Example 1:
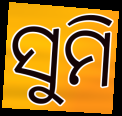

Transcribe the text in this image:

ସୁମି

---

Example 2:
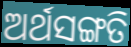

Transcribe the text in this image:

ଅର୍ଥସଙ୍ଗତି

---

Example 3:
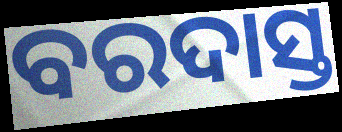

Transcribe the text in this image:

ବରଦାସ୍ତ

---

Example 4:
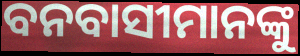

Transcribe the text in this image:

ବନବାସୀମାନଙ୍କୁ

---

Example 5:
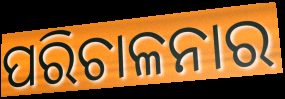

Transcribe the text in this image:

ପରିଚାଳନାର